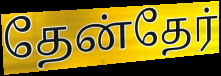
தேன்தேர்